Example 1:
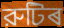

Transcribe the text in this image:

ৰুটিৰ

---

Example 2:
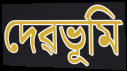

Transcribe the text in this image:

দেৱভূমি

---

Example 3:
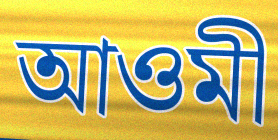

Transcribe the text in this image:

আওমী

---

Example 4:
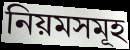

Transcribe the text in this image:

নিয়মসমূহ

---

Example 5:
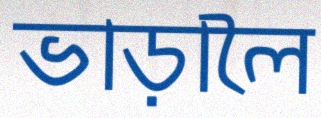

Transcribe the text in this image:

ভাড়ালৈ